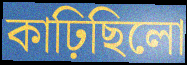
কাঢ়িছিলো